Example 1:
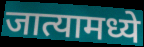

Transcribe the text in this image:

जात्यामध्ये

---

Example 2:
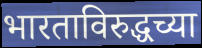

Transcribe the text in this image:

भारताविरुद्धच्या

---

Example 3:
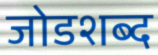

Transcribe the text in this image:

जोडशब्द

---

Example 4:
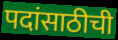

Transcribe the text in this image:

पदांसाठीची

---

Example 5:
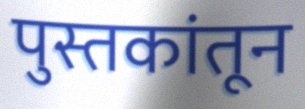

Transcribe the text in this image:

पुस्तकांतून